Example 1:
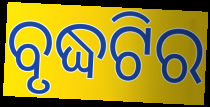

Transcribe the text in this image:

ବୃଦ୍ଧଟିର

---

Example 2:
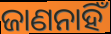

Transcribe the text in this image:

ଜାଣନାହିଁ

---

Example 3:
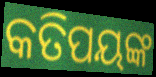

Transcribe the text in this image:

କତିପୟଙ୍କ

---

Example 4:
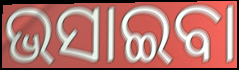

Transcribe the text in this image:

ଭସାଇବା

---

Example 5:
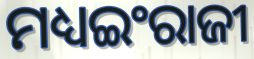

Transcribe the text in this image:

ମଧ୍ୟଇଂରାଜୀ